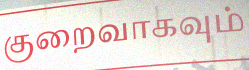
குறைவாகவும்